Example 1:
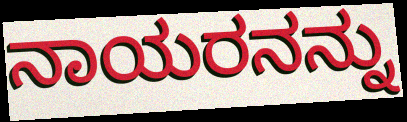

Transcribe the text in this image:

ನಾಯರನನ್ನು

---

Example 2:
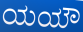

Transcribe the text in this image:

ಯಯೌ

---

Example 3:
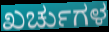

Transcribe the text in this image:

ಖರ್ಚುಗಳ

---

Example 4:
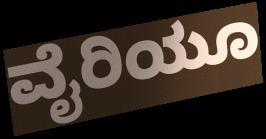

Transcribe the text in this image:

ವೈರಿಯೂ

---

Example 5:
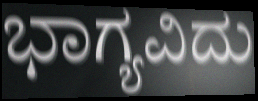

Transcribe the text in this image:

ಭಾಗ್ಯವಿದು